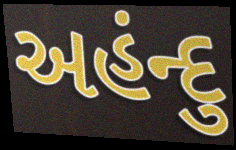
અહંન્દુ